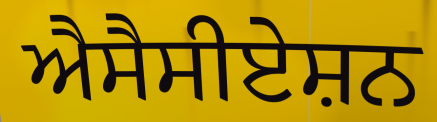
ਐਸੈਸੀਏਸ਼ਨ